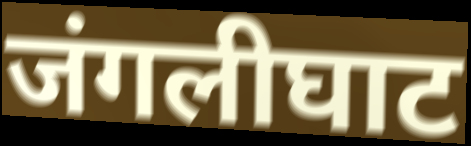
जंगलीघाट